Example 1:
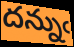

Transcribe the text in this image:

దన్నుఁ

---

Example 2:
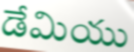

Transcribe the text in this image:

డేమియు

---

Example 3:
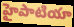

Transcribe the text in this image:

హైపాటియా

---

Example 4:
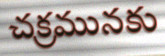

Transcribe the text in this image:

చక్రమునకు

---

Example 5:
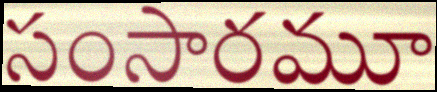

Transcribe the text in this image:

సంసారమూ